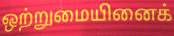
ஒற்றுமையினைக்